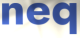
neq